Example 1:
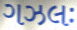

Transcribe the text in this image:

ગઝલઃ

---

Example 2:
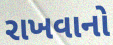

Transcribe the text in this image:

રાખવાનો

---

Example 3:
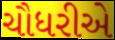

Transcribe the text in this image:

ચૌધરીએ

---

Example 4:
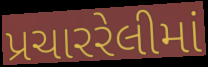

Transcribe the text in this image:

પ્રચારરેલીમાં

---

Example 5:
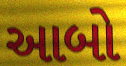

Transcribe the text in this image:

આબો